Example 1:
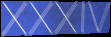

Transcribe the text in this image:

XXXIV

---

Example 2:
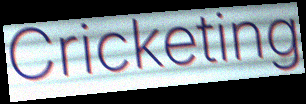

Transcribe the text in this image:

Cricketing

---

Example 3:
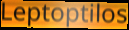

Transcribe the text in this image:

Leptoptilos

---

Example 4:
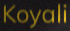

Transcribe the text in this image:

Koyali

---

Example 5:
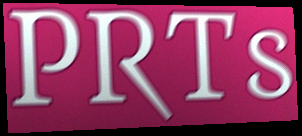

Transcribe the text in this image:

PRTs